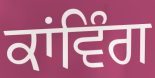
ਕਾਂਵਿੰਗ